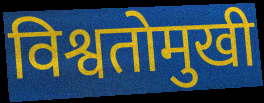
विश्वतोमुखी